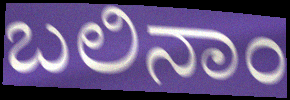
ಬಲಿನಾಂ